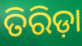
ତିରିଡ଼ା